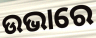
ଉଭାରେ